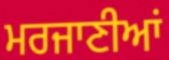
ਮਰਜਾਣੀਆਂ